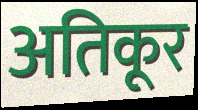
अतिकूर